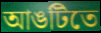
আঙটিতে